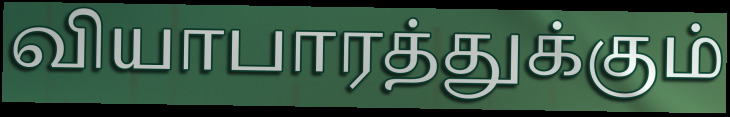
வியாபாரத்துக்கும்